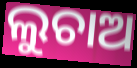
ଲୁଚାଅ